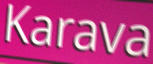
Karava